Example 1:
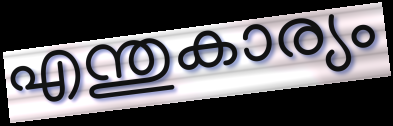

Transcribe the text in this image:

എന്തുകാര്യം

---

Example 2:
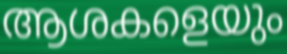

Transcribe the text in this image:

ആശകളെയും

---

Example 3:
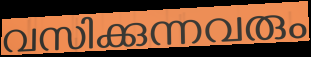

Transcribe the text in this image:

വസിക്കുന്നവരും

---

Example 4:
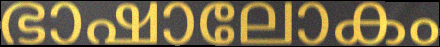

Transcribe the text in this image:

ഭാഷാലോകം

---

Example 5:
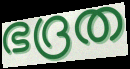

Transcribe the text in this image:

ഭദ്രത